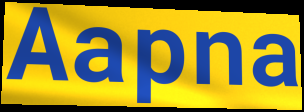
Aapna